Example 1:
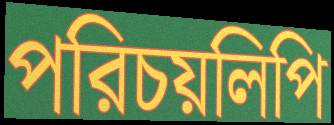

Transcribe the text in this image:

পরিচয়লিপি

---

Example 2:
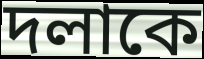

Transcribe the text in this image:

দলাকে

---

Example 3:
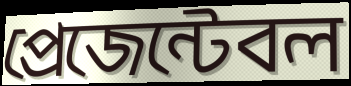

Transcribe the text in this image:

প্রেজেন্টেবল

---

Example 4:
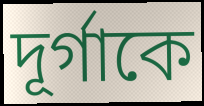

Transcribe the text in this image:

দূর্গাকে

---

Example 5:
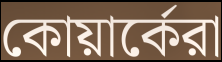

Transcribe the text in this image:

কোয়ার্কেরা